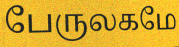
பேருலகமே